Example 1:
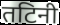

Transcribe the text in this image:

तटिनी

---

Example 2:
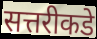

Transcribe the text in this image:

सत्तरीकडे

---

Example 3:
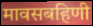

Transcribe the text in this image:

मावसबहिणी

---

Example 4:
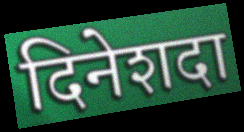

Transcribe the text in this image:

दिनेशदा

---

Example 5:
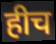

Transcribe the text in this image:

हीच